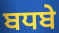
ਬਧਬੇ